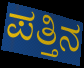
ಪತ್ತಿನ